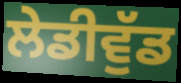
ਲੇਡੀਵੁੱਡ